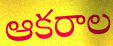
ఆకరాల